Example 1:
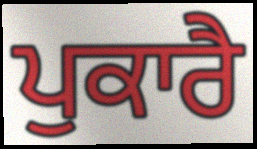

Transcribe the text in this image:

ਪੁਕਾਰੈ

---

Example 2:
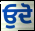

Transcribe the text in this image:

ਓੁਦੋ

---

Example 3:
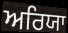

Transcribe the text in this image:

ਅਰਿਯਾ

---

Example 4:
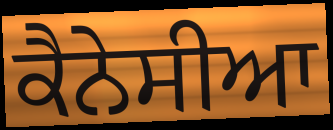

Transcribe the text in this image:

ਕੈਨੇਸੀਆ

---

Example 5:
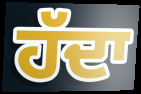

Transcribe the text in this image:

ਹੱਦਾ